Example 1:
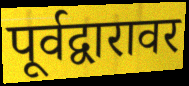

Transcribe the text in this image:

पूर्वद्वारावर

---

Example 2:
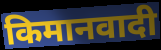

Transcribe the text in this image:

किमानवादी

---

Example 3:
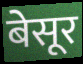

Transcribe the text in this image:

बेसूर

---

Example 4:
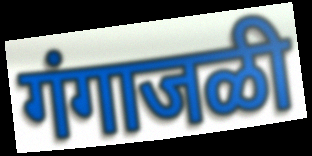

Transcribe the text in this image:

गंगाजळी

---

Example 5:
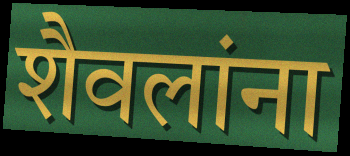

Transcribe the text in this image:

शैवलांना